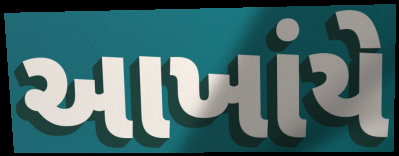
આખાંયે